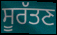
ਸੂਰੱਤਣ